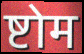
ष्टोम